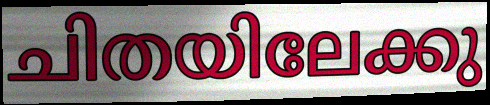
ചിതയിലേക്കു